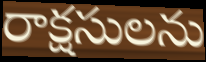
రాక్షసులను